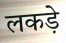
लकड़े